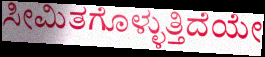
ಸೀಮಿತಗೊಳ್ಳುತ್ತಿದೆಯೇ